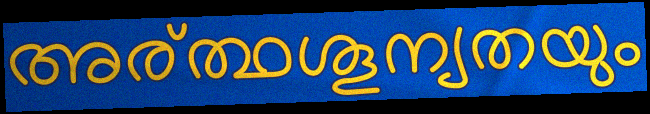
അര്ത്ഥശൂന്യതയും